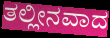
ತಲ್ಲೀನವಾದ